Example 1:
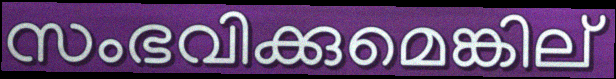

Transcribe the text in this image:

സംഭവിക്കുമെങ്കില്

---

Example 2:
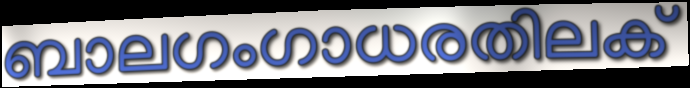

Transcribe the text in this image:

ബാലഗംഗാധരതിലക്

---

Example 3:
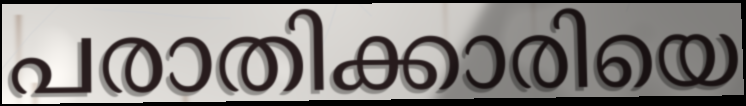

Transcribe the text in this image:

പരാതിക്കാരിയെ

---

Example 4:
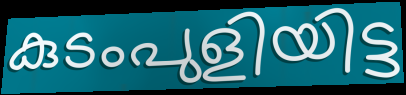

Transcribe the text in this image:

കുടംപുളിയിട്ട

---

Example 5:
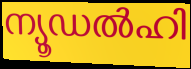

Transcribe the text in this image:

ന്യൂഡൽഹി